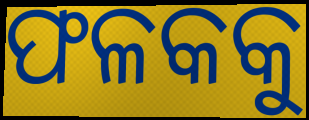
ଫଳକକୁ